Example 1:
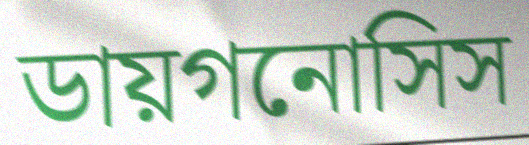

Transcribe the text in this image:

ডায়গনোসিস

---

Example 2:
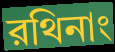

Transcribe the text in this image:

রথিনাং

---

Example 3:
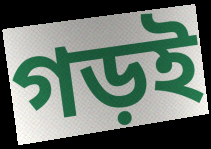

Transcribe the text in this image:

গড়ই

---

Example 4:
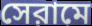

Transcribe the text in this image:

সেরামে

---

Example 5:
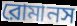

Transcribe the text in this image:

রোমানস